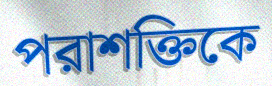
পরাশক্তিকে